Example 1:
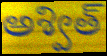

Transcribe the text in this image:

అశ్విత్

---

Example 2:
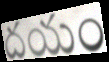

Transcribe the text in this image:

దయం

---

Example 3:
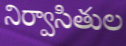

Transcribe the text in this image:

నిర్వాసితుల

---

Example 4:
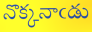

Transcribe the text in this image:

నొక్కనాఁడు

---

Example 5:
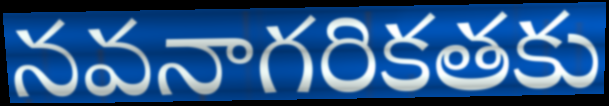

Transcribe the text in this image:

నవనాగరికతకు